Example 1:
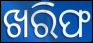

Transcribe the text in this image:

ଖରିଫ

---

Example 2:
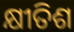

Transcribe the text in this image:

କ୍ଷୀତିଶ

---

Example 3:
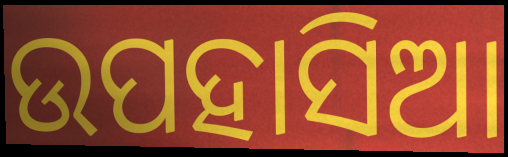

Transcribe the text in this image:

ଉପହାସିଆ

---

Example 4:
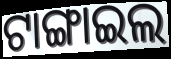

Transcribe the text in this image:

ଟାଙ୍ଗାଇଲ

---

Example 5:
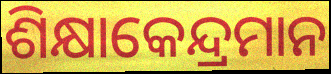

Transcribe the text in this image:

ଶିକ୍ଷାକେନ୍ଦ୍ରମାନ